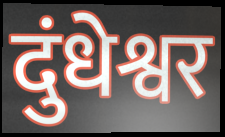
दुंधेश्वर